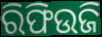
ରିଫିଉଜି